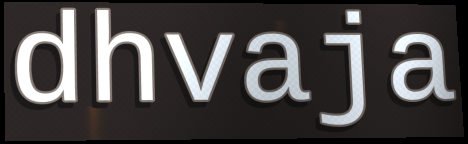
dhvaja